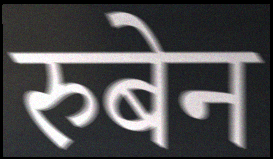
रुबेन